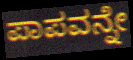
ಪಾಪವನ್ನೇ